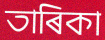
তাৰিকা